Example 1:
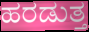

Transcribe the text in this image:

ಹರಡುತ್ತ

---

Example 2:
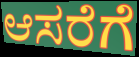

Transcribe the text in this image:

ಆಸರೆಗೆ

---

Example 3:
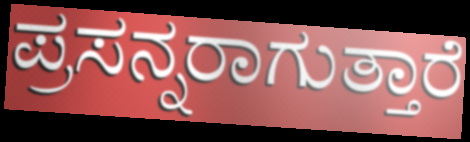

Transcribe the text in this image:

ಪ್ರಸನ್ನರಾಗುತ್ತಾರೆ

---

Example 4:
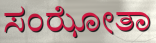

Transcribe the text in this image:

ಸಂಝೋತಾ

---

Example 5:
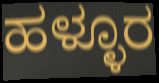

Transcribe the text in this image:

ಹಳ್ಳೂರ